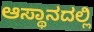
ಆಸ್ಥಾನದಲ್ಲಿ